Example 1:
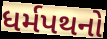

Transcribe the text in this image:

ધર્મપથનો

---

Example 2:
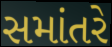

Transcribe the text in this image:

સમાંતરે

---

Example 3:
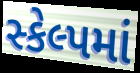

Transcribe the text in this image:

સ્કેલ્પમાં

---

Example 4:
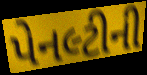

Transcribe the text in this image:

પેનલ્ટીની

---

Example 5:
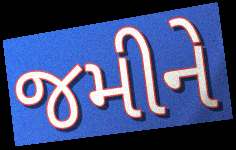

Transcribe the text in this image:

જમીને